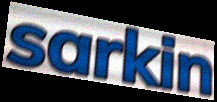
sarkin